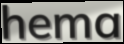
hema